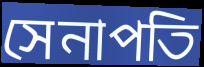
সেনাপতি